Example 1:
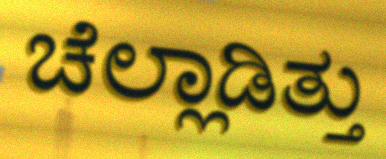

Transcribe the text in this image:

ಚೆಲ್ಲಾಡಿತ್ತು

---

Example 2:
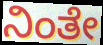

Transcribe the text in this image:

ನಿಂತೇ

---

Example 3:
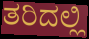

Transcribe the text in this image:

ತರಿದಲ್ಲಿ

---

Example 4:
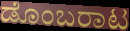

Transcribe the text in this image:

ಡೊಂಬರಾಟ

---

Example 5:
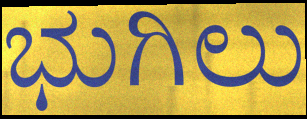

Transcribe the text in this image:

ಭುಗಿಲು